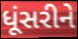
ધૂંસરીને